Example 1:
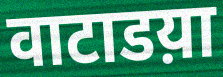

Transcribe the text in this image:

वाटाडय़ा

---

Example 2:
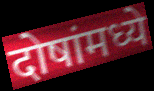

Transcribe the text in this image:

दोषांमध्ये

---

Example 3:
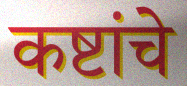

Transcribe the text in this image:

कष्टांचे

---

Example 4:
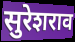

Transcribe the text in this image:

सुरेशराव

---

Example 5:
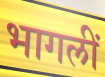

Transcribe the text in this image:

भागलीं